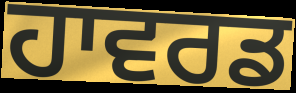
ਹਾਵਰਡ